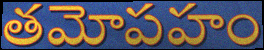
తమోపహం